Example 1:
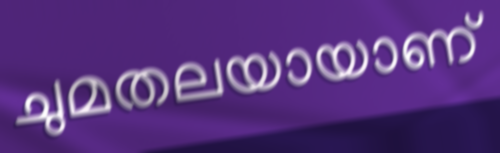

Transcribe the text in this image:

ചുമതലയായാണ്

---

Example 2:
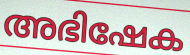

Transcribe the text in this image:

അഭിഷേക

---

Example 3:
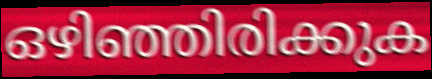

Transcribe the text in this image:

ഒഴിഞ്ഞിരിക്കുക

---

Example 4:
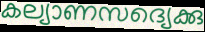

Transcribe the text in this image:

കല്യാണസദ്യെക്കു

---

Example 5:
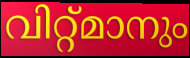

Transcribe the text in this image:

വിറ്റ്മാനും